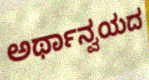
ಅರ್ಥಾನ್ವಯದ